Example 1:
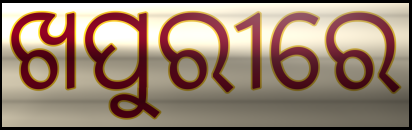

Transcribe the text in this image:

ଖପୁରୀରେ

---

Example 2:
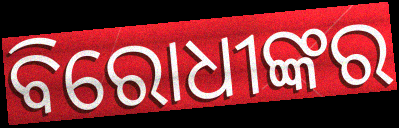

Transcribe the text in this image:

ବିରୋଧୀଙ୍କର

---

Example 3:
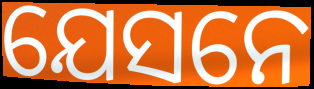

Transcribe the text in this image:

ଯେସନେ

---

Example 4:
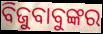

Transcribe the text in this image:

ବିଜୁବାବୁଙ୍କର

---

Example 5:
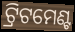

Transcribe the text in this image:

ଟ୍ରିଟମେଣ୍ଟ